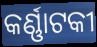
କର୍ଣ୍ଣାଟକୀ